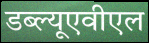
डब्ल्यूएवीएल